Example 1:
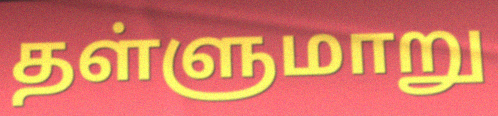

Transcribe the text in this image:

தள்ளுமாறு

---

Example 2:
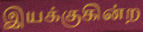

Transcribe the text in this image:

இயக்குகின்ற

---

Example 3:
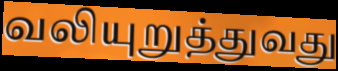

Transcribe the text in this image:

வலியுறுத்துவது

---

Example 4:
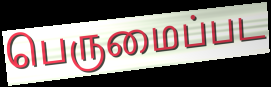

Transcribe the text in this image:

பெருமைப்பட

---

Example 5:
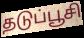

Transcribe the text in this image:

தடுப்பூசி